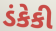
ડંકેકી